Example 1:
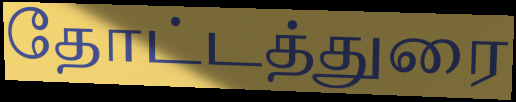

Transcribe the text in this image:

தோட்டத்துரை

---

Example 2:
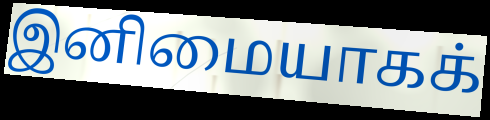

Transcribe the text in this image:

இனிமையாகக்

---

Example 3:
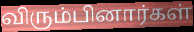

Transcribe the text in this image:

விரும்பினார்கள்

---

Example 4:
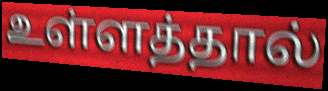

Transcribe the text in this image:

உள்ளத்தால்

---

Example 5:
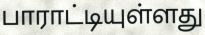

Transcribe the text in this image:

பாராட்டியுள்ளது